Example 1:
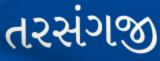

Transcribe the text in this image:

તરસંગજી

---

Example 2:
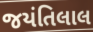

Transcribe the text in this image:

જયંતિલાલ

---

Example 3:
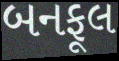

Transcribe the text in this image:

બનફૂલ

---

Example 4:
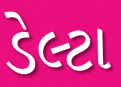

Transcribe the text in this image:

ડેલ્ટા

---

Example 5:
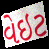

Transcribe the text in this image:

વેઇટ